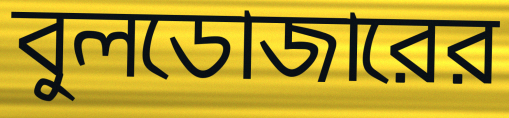
বুলডোজারের